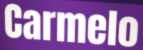
Carmelo